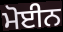
ਮੋਈਨ